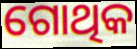
ଗୋଥିକ